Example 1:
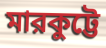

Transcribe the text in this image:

মারকুট্টে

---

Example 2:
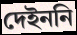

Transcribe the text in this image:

দেইননি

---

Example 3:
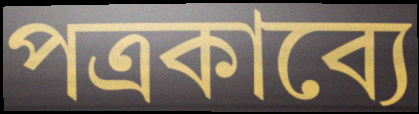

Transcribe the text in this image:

পত্রকাব্যে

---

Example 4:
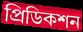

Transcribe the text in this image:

প্রিডিকশন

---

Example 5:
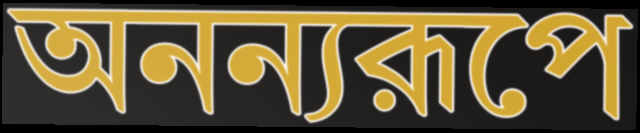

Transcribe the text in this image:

অনন্যরূপে